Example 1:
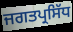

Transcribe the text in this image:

ਜਗਤਪ੍ਰਸਿੱਧ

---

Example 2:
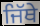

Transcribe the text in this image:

ਜਿੱਥੇ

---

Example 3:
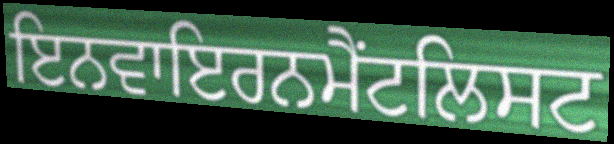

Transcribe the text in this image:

ਇਨਵਾਇਰਨਮੈਂਟਲਿਸਟ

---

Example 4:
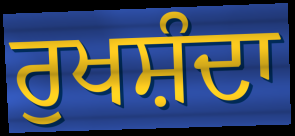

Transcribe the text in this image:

ਰੁਖਸ਼ੰਦਾ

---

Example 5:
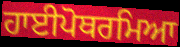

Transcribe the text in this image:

ਹਾਈਪੋਥਰਮਿਆ